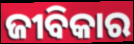
ଜୀବିକାର